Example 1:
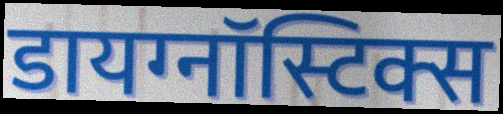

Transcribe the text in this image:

डायग्नॉस्टिक्स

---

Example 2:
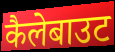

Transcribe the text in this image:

कैलेबाउट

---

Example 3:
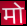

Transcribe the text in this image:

मो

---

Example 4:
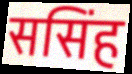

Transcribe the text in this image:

ससिंह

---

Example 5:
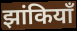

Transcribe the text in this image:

झांकियाँ